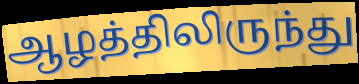
ஆழத்திலிருந்து